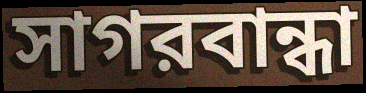
সাগরবান্ধা